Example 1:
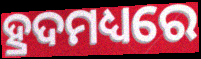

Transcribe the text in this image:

ହ୍ରଦମଧ୍ୟରେ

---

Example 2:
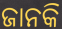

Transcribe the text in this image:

ଜାନକି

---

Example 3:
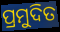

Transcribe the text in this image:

ପ୍ରମୁଦିତ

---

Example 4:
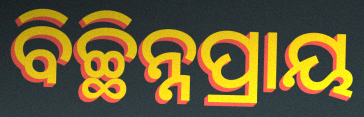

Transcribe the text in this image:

ବିଚ୍ଛିନ୍ନପ୍ରାୟ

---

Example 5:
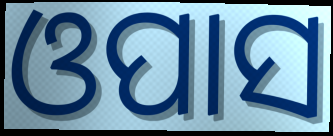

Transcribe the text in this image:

ଓପାସ